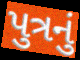
પુત્રનું